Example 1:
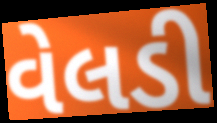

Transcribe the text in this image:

વેલડી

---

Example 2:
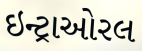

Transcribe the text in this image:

ઇન્ટ્રાઓરલ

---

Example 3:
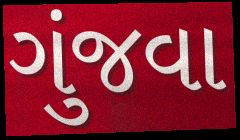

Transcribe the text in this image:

ગુંજવા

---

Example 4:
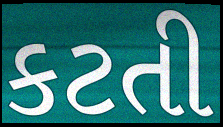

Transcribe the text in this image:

કટતી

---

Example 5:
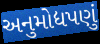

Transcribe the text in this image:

અનુમોદ્યપણું